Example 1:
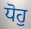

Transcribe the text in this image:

ਧੋਹੁ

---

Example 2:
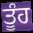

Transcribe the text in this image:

ਤੂੰਹ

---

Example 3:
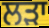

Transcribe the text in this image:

ਲੜਾ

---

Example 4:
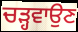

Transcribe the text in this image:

ਚੜ੍ਹਵਾਉਣ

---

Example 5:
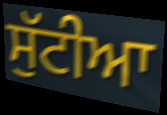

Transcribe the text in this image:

ਸੁੱਟੀਆ